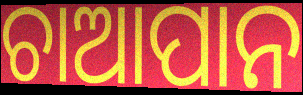
ଚାଆପାନ